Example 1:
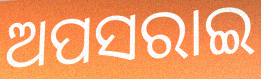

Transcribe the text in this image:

ଅପସରାଇ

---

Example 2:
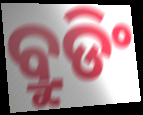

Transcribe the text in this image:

ବ୍ରୁଡିଂ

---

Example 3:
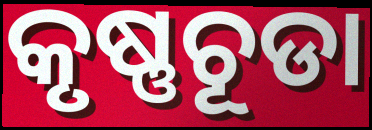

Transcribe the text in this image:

କୃଷ୍ଣଚୂଡା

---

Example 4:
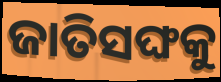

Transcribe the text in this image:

ଜାତିସଙ୍ଘକୁ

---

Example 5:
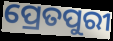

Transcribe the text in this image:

ପ୍ରେତପୁରୀ